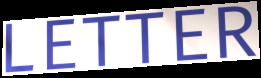
LETTER